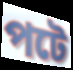
পটে